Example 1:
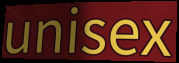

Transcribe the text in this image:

unisex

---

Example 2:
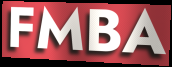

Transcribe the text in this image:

FMBA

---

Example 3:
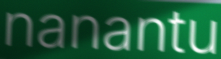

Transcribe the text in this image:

nanantu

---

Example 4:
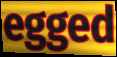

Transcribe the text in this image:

egged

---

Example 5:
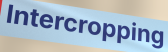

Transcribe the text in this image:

Intercropping